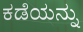
ಕಡೆಯನ್ನು